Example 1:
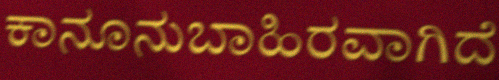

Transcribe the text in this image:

ಕಾನೂನುಬಾಹಿರವಾಗಿದೆ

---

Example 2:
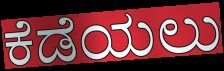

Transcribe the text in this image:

ಕೆಡೆಯಲು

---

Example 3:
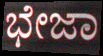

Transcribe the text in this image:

ಭೇಜಾ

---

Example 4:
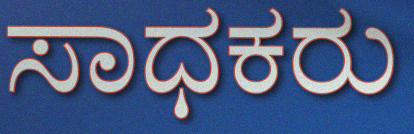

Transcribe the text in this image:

ಸಾಧಕರು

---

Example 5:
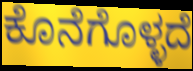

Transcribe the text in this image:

ಕೊನೆಗೊಳ್ಳದೆ